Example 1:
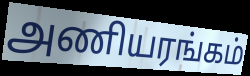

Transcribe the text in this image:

அணியரங்கம்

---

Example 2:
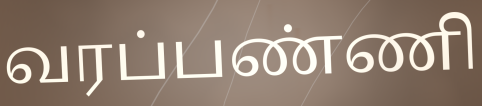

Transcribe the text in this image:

வரப்பண்ணி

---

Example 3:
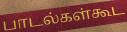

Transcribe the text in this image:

பாடல்கள்கூட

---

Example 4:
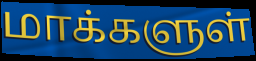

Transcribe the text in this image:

மாக்களுள்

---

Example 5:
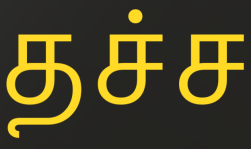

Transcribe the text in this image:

தச்ச